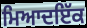
ਮਿਆਦਇੱਕ